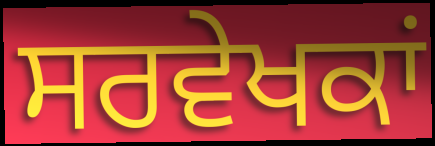
ਸਰਵੇਖਕਾਂ